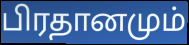
பிரதானமும்